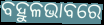
ବହୁଳଭାବରେ